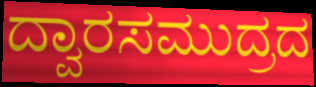
ದ್ವಾರಸಮುದ್ರದ